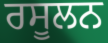
ਰਸੂਲਨ